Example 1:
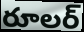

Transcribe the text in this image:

రూలర్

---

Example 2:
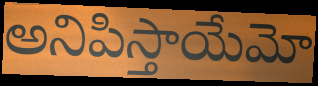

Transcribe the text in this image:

అనిపిస్తాయేమో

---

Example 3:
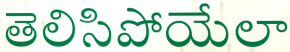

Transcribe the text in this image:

తెలిసిపోయేలా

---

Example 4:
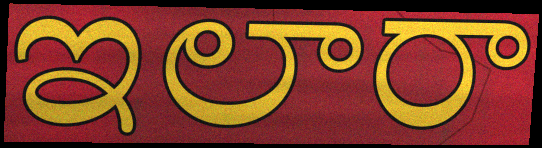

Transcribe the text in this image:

ఇలారా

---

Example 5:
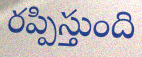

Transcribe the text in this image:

రప్పిస్తుంది